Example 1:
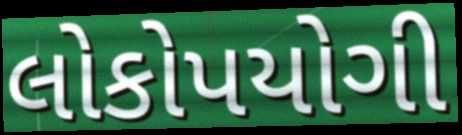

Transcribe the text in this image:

લોકોપયોગી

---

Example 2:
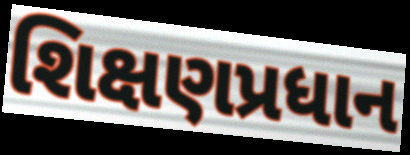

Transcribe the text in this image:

શિક્ષણપ્રધાન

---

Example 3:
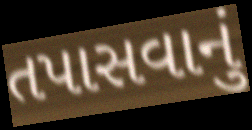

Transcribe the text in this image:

તપાસવાનું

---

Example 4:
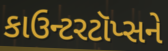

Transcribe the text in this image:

કાઉન્ટરટૉપ્સને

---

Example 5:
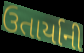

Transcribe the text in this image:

ઉતાર્યાની